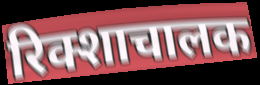
रिक्शाचालक